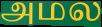
அமல